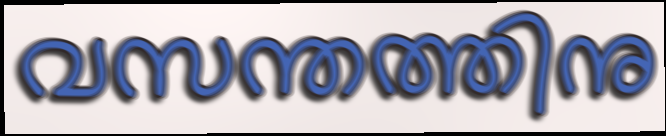
വസന്തത്തിനു